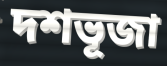
দশভূজা